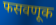
फसवणूक